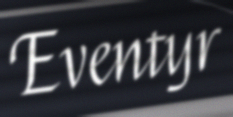
Eventyr